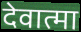
देवात्मा